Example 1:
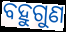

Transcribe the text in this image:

ବହୁଗୁଣ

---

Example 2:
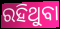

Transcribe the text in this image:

ରହିଥୁବା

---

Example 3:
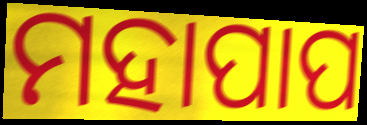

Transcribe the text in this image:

ମହାପାପ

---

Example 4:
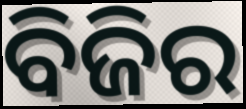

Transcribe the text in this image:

ବିଜିର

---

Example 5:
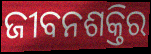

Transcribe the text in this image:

ଜୀବନଶକ୍ତିର